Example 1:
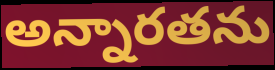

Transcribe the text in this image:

అన్నారతను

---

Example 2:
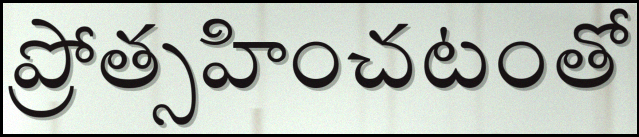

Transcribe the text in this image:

ప్రోత్సహించటంతో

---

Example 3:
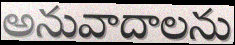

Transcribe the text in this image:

అనువాదాలను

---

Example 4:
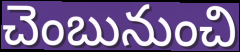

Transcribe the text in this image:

చెంబునుంచి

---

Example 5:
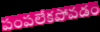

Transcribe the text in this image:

పంపలేకపోవడం